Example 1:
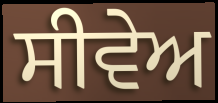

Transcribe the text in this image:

ਸੀਵੇਅ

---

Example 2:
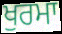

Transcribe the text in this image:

ਖੁਰਮਾ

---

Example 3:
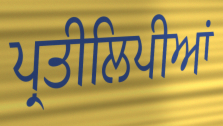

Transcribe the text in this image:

ਪ੍ਰਤੀਲਿਪੀਆਂ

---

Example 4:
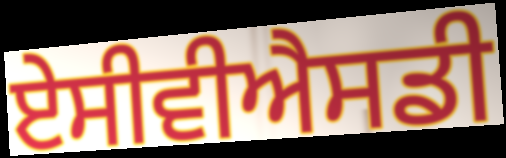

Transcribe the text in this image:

ਏਸੀਵੀਐਸਡੀ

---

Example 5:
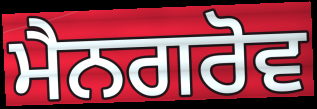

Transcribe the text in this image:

ਮੈਨਗਰੋਵ